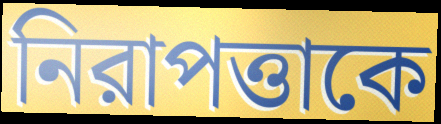
নিরাপত্তাকে